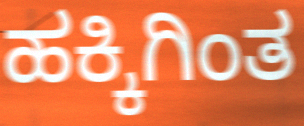
ಹಕ್ಕಿಗಿಂತ